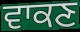
ਵਾਕਣ